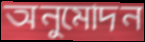
অনুমোদন